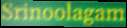
Srinoolagam